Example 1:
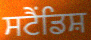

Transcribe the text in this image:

ਸਟੈਂਡਿਸ਼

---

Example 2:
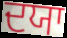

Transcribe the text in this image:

ਦਯਾ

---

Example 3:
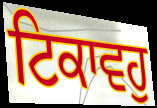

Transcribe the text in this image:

ਟਿਕਾਵਹੁ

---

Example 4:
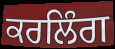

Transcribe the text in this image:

ਕਰਲਿੰਗ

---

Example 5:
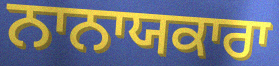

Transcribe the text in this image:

ਨਾਨਾਯਕਾਰਾ